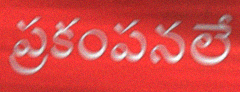
ప్రకంపనలే